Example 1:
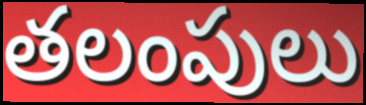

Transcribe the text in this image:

తలంపులు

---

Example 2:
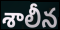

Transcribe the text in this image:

శాలీన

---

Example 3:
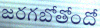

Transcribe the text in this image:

జరగబోతోందో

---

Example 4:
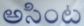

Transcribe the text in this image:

అసింట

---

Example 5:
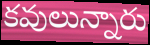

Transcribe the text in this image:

కవులున్నారు